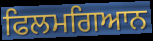
ਫਿਲਮਗਿਆਨ